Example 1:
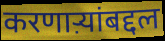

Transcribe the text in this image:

करणाऱ्‍यांबद्दल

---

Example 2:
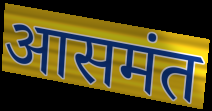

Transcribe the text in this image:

आसमंत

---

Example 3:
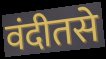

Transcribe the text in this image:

वंदीतसे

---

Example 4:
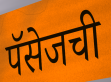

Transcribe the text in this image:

पॅसेजची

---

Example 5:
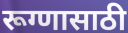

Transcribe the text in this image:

रूग्णासाठी